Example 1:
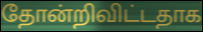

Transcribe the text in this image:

தோன்றிவிட்டதாக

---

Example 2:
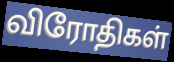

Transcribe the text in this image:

விரோதிகள்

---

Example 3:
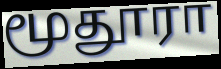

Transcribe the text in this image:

மூதூரா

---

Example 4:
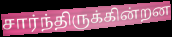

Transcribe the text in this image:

சார்ந்திருக்கின்றன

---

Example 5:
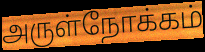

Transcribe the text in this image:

அருள்நோக்கம்